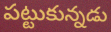
పట్టుకున్నడు